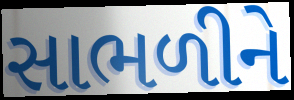
સાભળીને